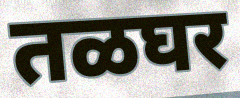
तळघर